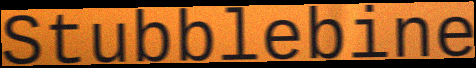
Stubblebine